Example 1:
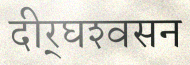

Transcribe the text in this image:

दीर्घश्वसन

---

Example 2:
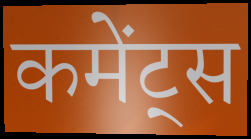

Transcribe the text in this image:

कमेंट्‌स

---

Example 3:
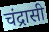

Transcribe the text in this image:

चंद्रासी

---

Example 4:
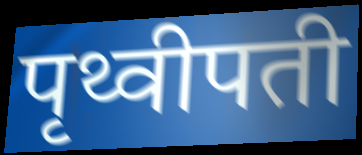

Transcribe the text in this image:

पृथ्वीपती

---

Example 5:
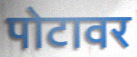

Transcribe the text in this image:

पोटावर